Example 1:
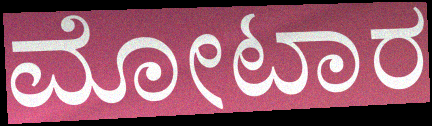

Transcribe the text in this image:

ಮೋಟಾರ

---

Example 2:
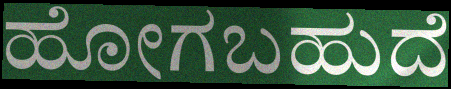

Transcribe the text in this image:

ಹೋಗಬಹುದೆ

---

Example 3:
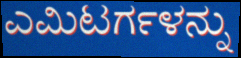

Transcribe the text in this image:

ಎಮಿಟರ್ಗಳನ್ನು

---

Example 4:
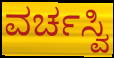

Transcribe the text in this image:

ವರ್ಚಸ್ವಿ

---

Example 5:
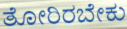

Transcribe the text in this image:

ತೋರಿರಬೇಕು